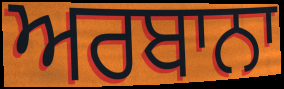
ਅਰਬਾਨਾ